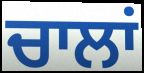
ਚਾਲਾਂ